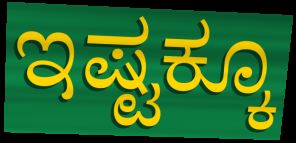
ಇಷ್ಟಕ್ಕೂ